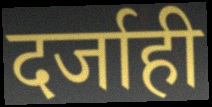
दर्जाही